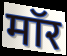
मॉर